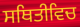
ਸਥਿਤੀਵਿਚ